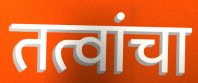
तत्वांचा